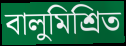
বালুমিশ্রিত